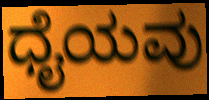
ಧೈಯವು